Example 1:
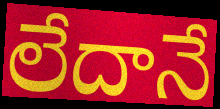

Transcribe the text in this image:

లేదానే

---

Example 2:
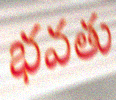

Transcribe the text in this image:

భవతు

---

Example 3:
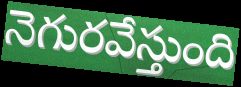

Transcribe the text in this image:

నెగురవేస్తుంది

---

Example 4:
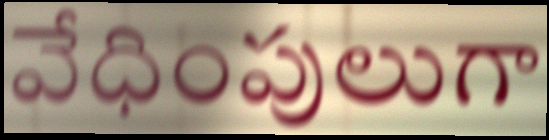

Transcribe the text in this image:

వేధింపులుగా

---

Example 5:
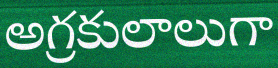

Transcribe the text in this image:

అగ్రకులాలుగా